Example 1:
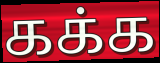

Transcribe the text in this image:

கக்க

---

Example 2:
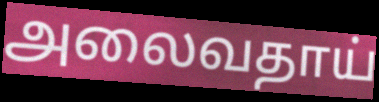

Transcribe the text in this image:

அலைவதாய்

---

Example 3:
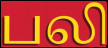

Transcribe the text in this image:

பலி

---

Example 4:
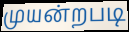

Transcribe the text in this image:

முயன்றபடி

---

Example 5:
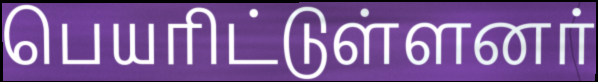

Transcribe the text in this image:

பெயரிட்டுள்ளனர்